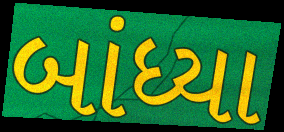
બાંધ્યા